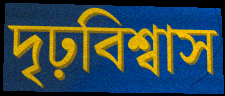
দৃঢ়বিশ্বাস